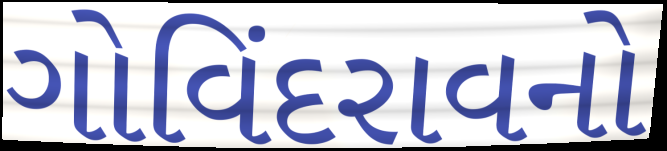
ગોવિંદરાવનો